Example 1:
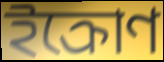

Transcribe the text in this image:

ইক্রোণ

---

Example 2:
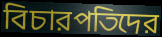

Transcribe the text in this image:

বিচারপতিদের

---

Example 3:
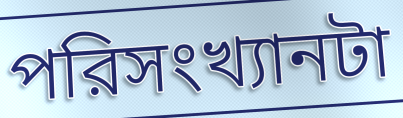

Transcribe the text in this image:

পরিসংখ্যানটা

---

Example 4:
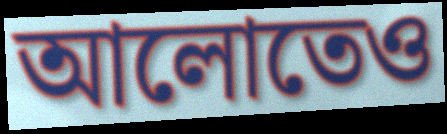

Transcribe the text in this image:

আলোতেও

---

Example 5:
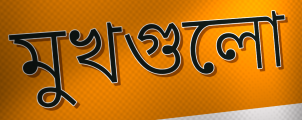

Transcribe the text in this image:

মুখগুলো